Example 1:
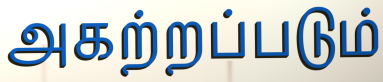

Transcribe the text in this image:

அகற்றப்படும்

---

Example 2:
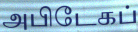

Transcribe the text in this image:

அபிடேகப்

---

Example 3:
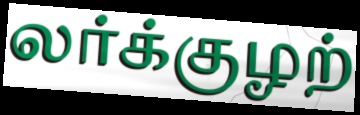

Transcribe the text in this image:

லர்க்குழற்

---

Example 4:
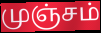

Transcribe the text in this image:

முஞ்சம்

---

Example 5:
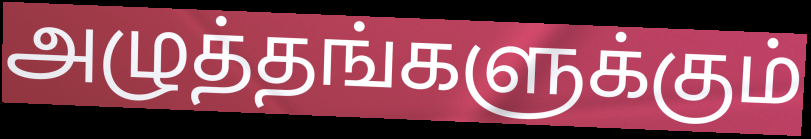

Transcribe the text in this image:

அழுத்தங்களுக்கும்